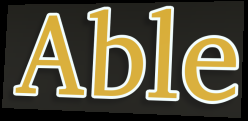
Able